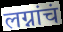
लग्नांचं